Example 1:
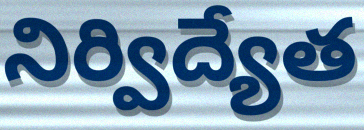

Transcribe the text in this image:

నిర్విద్యేత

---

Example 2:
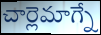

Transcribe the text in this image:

చార్లెమాగ్నే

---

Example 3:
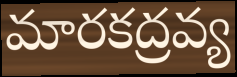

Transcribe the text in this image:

మారకద్రవ్య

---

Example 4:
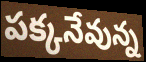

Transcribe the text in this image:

పక్కనేవున్న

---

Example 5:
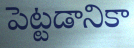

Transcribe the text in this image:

పెట్టడానికా